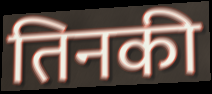
तिनकी